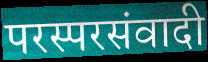
परस्परसंवादी